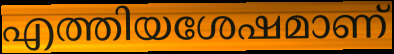
എത്തിയശേഷമാണ്